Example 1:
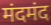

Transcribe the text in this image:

मंदमंद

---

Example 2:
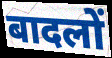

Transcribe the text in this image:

बादलों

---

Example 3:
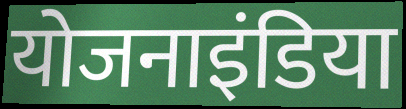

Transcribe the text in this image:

योजनाइंडिया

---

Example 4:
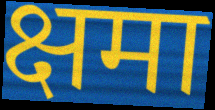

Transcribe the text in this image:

क्षमा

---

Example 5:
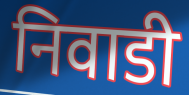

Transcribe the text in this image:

निवाडी